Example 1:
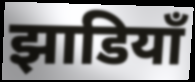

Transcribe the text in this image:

झाडियाँ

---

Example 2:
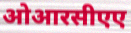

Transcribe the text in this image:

ओआरसीएए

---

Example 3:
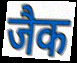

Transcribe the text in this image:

जैक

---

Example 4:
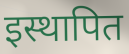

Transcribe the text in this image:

इस्थापित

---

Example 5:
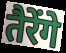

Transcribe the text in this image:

तैरेंगे